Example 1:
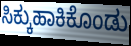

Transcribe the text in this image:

ಸಿಕ್ಕುಹಾಕಿಕೊಂಡು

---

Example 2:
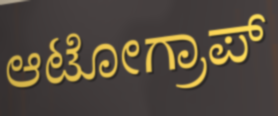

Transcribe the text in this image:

ಆಟೋಗ್ರಾಪ್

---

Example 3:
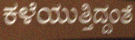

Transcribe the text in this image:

ಕಳೆಯುತ್ತಿದ್ದಂತೆ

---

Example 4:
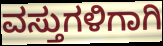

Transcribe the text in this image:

ವಸ್ತುಗಳಿಗಾಗಿ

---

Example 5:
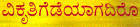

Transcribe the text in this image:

ವಿಕೃತಿಗೆಡೆಯಾಗದಿರೊ